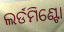
ଲର୍ଡମିଣ୍ଟୋ